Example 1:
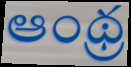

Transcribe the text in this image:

ఆంథ్ర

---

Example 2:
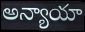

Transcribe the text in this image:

అన్యాయా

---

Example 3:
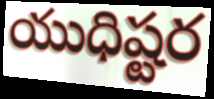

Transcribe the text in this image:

యుధిష్టర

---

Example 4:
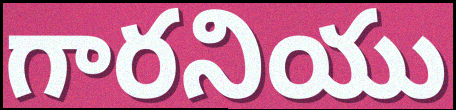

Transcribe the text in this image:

గారనియు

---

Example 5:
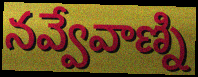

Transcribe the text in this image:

నవ్వేవాణ్ని